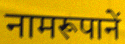
नामरूपानें